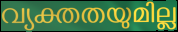
വ്യക്തതയുമില്ല